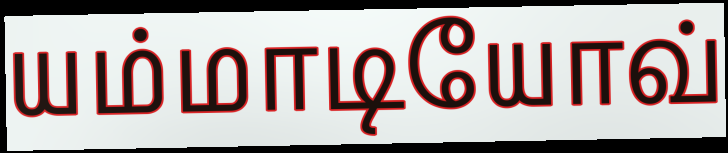
யம்மாடியோவ்